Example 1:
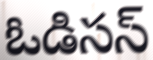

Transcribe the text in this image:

ఓడిసస్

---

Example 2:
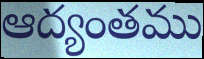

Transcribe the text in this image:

ఆద్యంతము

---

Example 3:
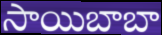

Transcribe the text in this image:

సాయిబాబా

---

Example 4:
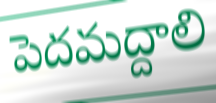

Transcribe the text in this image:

పెదమద్దాలి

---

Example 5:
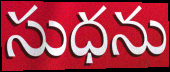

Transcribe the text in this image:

సుధను